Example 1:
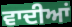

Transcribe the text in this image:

ਵਾਦੀਆਂ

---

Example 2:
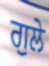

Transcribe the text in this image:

ਗੁਲੇ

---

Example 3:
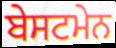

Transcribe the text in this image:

ਬੇਸਟਮੇਨ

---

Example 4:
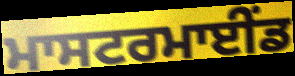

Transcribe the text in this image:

ਮਾਸਟਰਮਾਈੰਡ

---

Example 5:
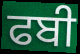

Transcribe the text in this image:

ਫਬੀ